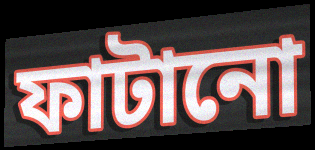
ফাটানো